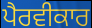
ਪੈਰਵੀਕਾਰ